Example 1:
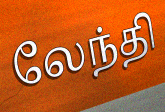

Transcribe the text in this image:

லேந்தி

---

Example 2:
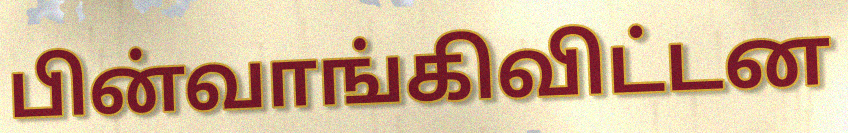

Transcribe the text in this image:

பின்வாங்கிவிட்டன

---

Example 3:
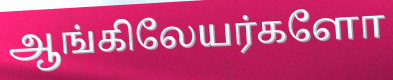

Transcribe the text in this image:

ஆங்கிலேயர்களோ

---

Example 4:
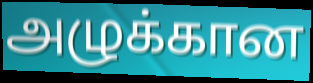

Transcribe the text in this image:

அழுக்கான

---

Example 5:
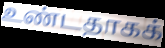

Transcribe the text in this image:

உண்டதாகக்